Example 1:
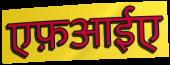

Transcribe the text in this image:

एफ़आईए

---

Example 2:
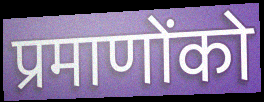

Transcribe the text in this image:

प्रमाणोंको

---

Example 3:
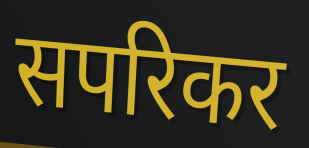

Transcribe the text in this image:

सपरिकर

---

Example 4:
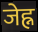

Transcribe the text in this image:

जेह्न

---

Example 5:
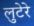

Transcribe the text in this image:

लुटेरे